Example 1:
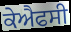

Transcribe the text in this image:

ਕੇਐਫਸੀ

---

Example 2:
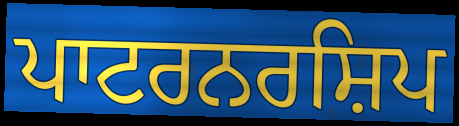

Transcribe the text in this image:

ਪਾਟਰਨਰਸ਼ਿਪ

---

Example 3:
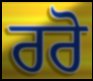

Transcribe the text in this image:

ਰਰੋ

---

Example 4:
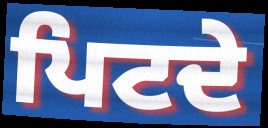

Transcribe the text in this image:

ਪਿਟਦੇ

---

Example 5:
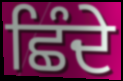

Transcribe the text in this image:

ਛਿੰਦੇ